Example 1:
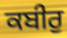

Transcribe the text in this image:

ਕਬੀਰੁ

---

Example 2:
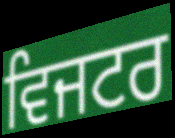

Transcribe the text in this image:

ਵਿਜਟਰ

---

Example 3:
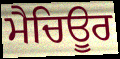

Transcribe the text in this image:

ਮੈਚਿਊਰ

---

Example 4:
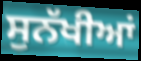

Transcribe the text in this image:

ਸੁਨੱਖੀਆਂ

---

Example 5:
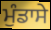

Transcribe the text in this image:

ਮੁੰਡਾਸੇ